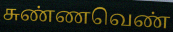
சுண்ணவெண்